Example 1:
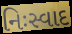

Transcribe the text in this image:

નિઃસ્વાદ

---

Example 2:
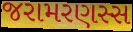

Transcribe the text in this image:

જરામરણસ્સ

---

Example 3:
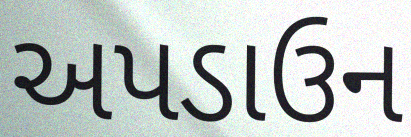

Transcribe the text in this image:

અપડાઉન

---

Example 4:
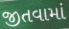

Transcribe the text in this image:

જીતવામાં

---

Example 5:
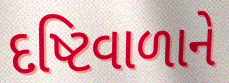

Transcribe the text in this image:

દષ્ટિવાળાને